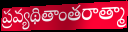
ప్రవ్యథితాంతరాత్మా